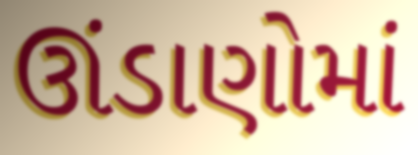
ઊંડાણોમાં